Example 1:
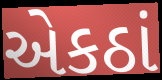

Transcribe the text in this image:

એકઠાં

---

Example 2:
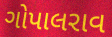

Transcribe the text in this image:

ગોપાલરાવ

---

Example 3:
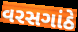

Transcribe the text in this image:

વરસગાંઠે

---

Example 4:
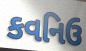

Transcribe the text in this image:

કવનિઉ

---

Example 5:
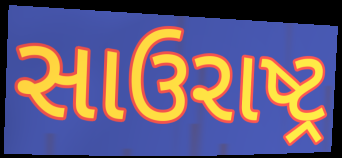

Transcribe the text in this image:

સાઉરાષ્ટ્ર